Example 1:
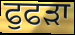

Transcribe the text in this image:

ਫੁਫੜਾ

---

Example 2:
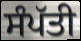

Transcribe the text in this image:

ਸੰਪੱਤੀ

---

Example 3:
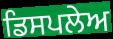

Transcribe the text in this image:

ਡਿਸਪਲੇਅ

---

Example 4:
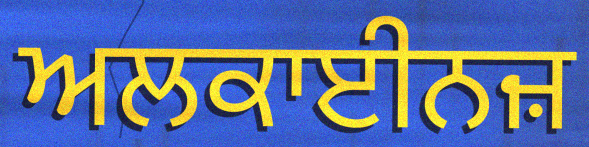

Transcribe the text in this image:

ਅਲਕਾਈਨਜ਼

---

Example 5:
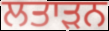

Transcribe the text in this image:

ਲਤਾੜਨ